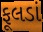
ફૂલડાં